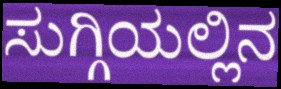
ಸುಗ್ಗಿಯಲ್ಲಿನ